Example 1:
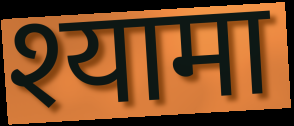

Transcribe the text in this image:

श्‍यामा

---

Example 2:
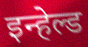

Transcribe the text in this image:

इन्हेल्ड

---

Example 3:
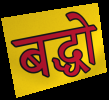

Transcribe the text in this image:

बद्धो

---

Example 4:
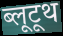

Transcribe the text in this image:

ब्‍लूटूथ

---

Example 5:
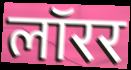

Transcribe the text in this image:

लॉरर